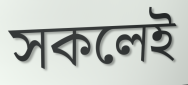
সকলেই